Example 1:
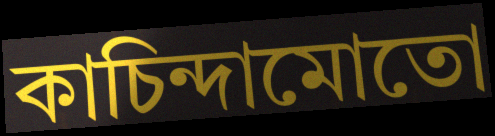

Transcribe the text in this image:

কাচিন্দামোতো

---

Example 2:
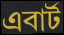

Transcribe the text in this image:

এবার্ট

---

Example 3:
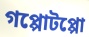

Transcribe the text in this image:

গপ্পোটপ্পো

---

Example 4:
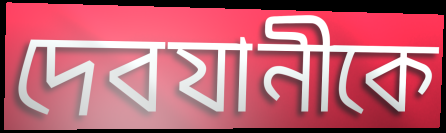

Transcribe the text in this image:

দেবযানীকে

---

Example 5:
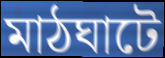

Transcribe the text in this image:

মাঠঘাটে